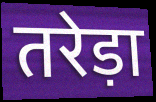
तरेड़ा